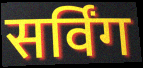
सर्विंग